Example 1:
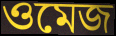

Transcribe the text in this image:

ওমেজ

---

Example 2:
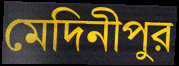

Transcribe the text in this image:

মেদিনীপুর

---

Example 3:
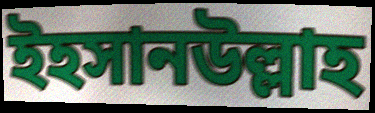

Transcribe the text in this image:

ইহসানউল্লাহ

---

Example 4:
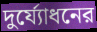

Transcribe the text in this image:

দুর্য্যোধনের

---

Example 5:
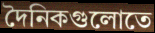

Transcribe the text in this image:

দৈনিকগুলোতে